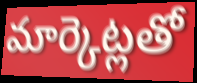
మార్కెట్లతో